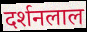
दर्शनलाल